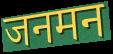
जनमन